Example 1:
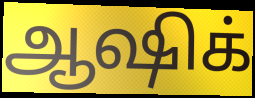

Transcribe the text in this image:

ஆஷிக்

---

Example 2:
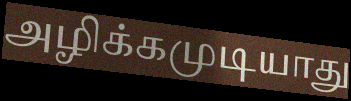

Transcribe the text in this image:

அழிக்கமுடியாது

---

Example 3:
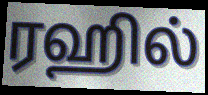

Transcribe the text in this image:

ரஹில்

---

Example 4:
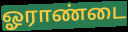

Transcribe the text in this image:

ஓராண்டை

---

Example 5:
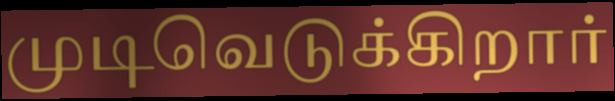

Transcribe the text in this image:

முடிவெடுக்கிறார்